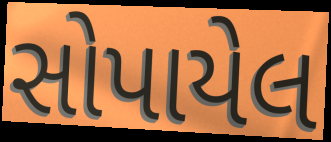
સોપાયેલ